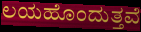
ಲಯಹೊಂದುತ್ತವೆ